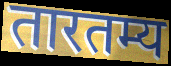
तारतम्य